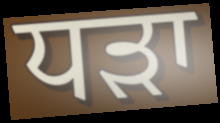
ਧੜਾ